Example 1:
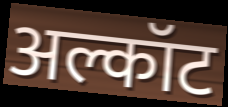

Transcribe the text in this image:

अल्कॉट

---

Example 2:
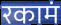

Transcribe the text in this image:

रकामं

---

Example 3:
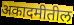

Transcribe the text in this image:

अकादमीतील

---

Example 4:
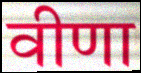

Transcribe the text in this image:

वीणा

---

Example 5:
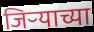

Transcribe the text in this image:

जिऱ्याच्या